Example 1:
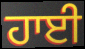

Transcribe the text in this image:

ਹਾਈ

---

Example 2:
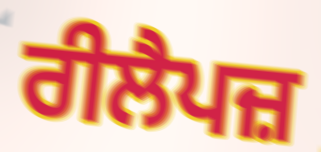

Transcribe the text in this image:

ਰੀਲੈਪਜ਼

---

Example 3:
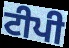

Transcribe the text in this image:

ਟੀਪੀ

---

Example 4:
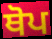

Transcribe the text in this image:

ਥੋਪ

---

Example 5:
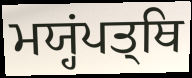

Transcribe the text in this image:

ਮਯ੍ਹਂਪਤ੍ਥਿ